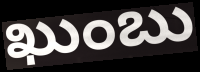
ఖుంబు